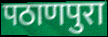
पठाणपुरा